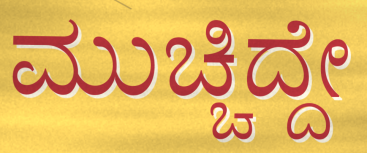
ಮುಚ್ಚಿದ್ದೇ